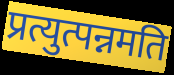
प्रत्युत्पन्नमति